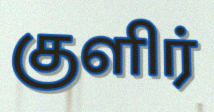
குளிர்